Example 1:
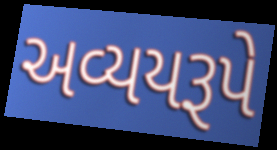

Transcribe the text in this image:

અવ્યયરૂપે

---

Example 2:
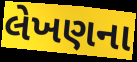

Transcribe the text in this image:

લેખણના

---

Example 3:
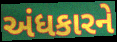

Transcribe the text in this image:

અંધકારને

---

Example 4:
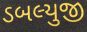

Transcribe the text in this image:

ડબલ્યુજી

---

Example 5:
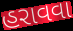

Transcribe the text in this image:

હરાવવા